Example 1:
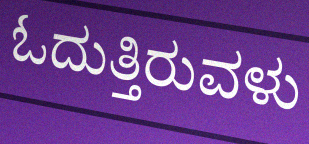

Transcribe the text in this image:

ಓದುತ್ತಿರುವಳು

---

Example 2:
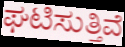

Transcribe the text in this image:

ಘಟಿಸುತ್ತಿವೆ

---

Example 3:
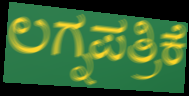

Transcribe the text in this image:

ಲಗ್ನಪತ್ರಿಕೆ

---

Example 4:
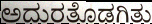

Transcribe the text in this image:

ಅದುರತೊಡಗಿತು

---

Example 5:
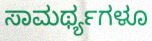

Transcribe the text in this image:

ಸಾಮರ್ಥ್ಯಗಳೂ